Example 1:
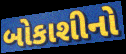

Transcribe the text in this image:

બોકાશીનો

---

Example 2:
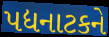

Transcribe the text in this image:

પદ્યનાટકને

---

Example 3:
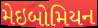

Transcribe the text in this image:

મેઇબોમિયન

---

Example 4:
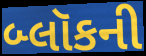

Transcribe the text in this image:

બ્લૉકની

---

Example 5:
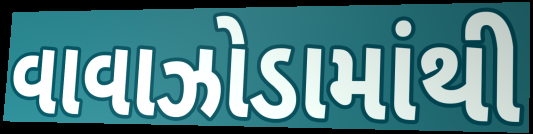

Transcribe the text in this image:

વાવાઝોડામાંથી